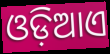
ଓଡ଼ିଆଏ